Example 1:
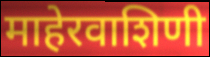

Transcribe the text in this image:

माहेरवाशिणी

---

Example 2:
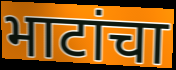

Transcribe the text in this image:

भाटांचा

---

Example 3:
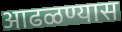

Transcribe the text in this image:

आढळण्यास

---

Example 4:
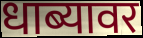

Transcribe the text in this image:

धाब्यावर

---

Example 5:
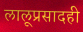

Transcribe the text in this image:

लालूप्रसादही